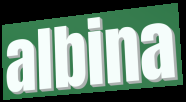
albina